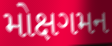
મોક્ષગમન